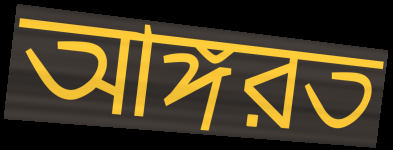
আঙ্গরত